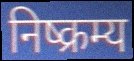
निष्क्रम्य